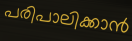
പരിപാലിക്കാൻ